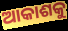
ଆକାଶକୁ